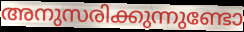
അനുസരിക്കുന്നുണ്ടോ